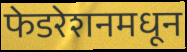
फेडरेशनमधून